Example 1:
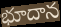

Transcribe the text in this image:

భూదాన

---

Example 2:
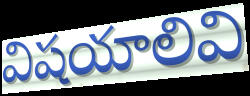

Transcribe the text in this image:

విషయాలివి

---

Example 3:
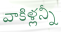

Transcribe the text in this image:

వాకిళ్లన్నీ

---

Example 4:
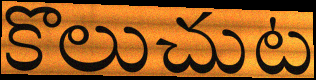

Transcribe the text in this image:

కొలుచుట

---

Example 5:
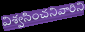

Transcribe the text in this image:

విశ్వసించనివారిని